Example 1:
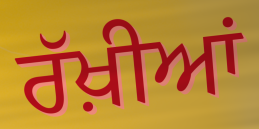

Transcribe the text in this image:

ਰੱਖ਼ੀਆਂ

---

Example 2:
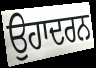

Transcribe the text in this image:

ਉਹਾਦਰਨ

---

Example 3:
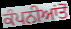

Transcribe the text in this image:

ਕੰਪਨੀਆਂਤੋਂ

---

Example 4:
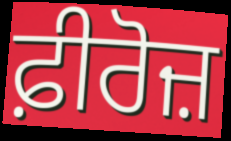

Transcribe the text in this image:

ਫ਼ੀਰੋਜ਼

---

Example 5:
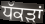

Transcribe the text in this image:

ਧੱਕੜਾਂ